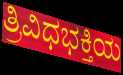
ತ್ರಿವಿಧಭಕ್ತಿಯ